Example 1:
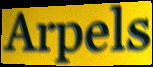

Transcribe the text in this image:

Arpels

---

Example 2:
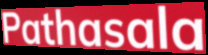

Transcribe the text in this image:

Pathasala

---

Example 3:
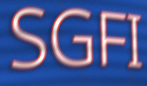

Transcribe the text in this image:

SGFI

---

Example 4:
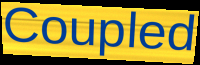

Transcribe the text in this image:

Coupled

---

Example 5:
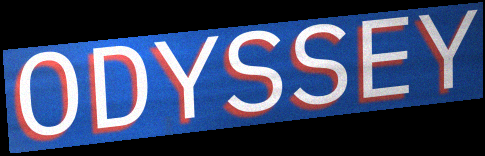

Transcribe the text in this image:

ODYSSEY